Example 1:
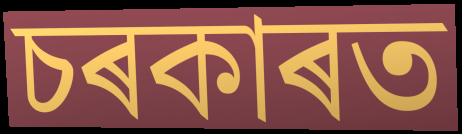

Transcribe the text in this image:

চৰকাৰত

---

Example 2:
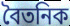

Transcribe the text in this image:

বৈতনিক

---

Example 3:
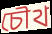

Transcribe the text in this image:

চৌথ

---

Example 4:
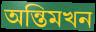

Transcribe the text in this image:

অন্তিমখন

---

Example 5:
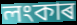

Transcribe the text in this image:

লংকাৰ